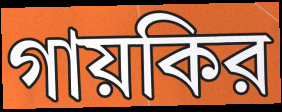
গায়কির